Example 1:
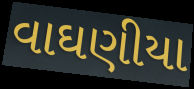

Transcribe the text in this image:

વાઘણીયા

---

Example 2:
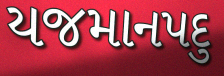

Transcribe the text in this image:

યજમાનપદુ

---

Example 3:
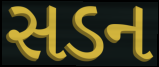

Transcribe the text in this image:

સડન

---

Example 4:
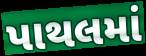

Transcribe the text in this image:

પાથલમાં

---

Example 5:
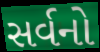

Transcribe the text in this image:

સર્વનો